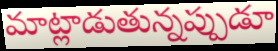
మాట్లాడుతున్నప్పుడూ